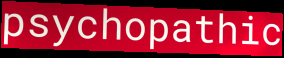
psychopathic